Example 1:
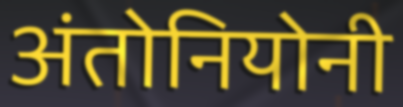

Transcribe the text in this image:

अंतोनियोनी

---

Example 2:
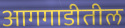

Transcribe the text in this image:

आगगाडीतील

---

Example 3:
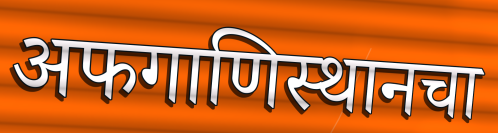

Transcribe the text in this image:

अफगाणिस्थानचा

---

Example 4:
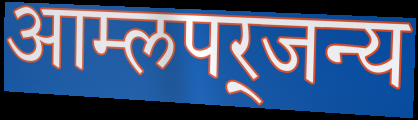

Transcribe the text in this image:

आम्लपर्जन्य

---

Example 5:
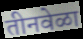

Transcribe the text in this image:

तीनवेळा